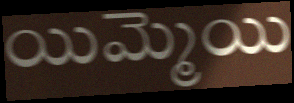
యిమ్మెయి